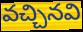
వచ్చినవి